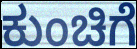
ಕುಂಚಿಗೆ